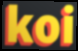
koi